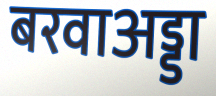
बरवाअड्डा